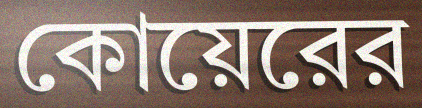
কোয়েরের